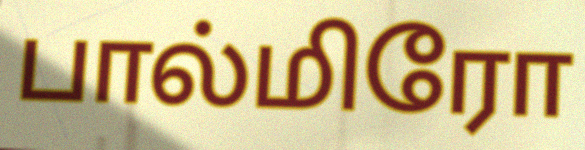
பால்மிரோ